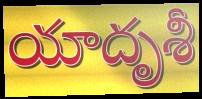
యాదృశీ